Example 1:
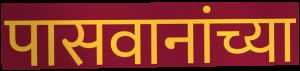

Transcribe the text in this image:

पासवानांच्या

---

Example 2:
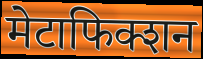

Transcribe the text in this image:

मेटाफिक्शन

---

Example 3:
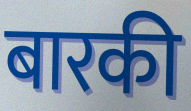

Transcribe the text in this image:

बारकी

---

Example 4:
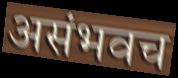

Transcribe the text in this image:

असंभवच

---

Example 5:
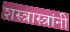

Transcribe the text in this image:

शस्त्रास्त्रांनी